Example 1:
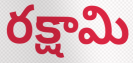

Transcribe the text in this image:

రక్షామి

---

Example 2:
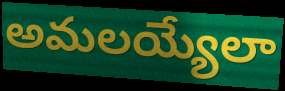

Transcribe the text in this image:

అమలయ్యేలా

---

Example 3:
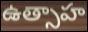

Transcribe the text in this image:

ఉత్సాహ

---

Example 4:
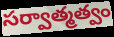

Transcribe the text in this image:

సర్వాత్మత్వం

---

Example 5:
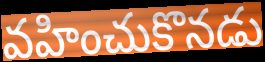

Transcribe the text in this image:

వహించుకొనడు